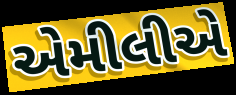
એમીલીએ